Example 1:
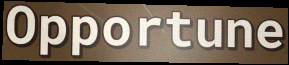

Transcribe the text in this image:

Opportune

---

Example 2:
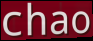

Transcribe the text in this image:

chao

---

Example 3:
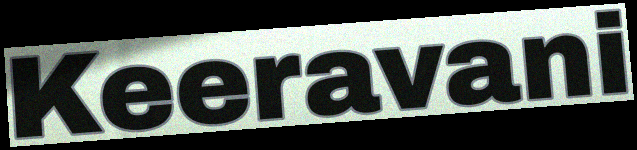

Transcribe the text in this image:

Keeravani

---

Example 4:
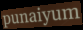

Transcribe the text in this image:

punaiyum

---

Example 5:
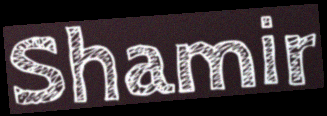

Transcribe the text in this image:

Shamir